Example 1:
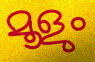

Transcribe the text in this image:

മൂളും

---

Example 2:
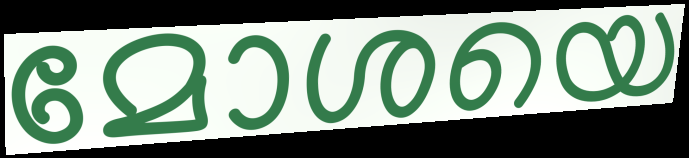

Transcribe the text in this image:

മോശയെ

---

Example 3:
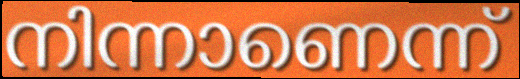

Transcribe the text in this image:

നിന്നാണെന്ന്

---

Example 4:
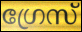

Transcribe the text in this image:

ഗ്രേസ്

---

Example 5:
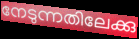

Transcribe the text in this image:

നേടുന്നതിലേക്കു